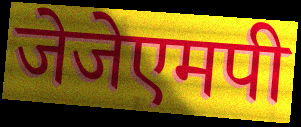
जेजेएमपी